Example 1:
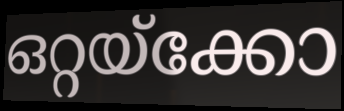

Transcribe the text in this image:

ഒറ്റയ്ക്കോ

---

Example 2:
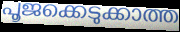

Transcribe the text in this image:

പൂജക്കെടുക്കാത്ത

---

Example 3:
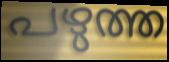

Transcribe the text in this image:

പഴുത്ത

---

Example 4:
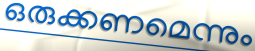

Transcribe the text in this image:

ഒരുക്കണമെന്നും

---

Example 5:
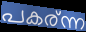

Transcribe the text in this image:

പകര്ന്ന